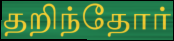
தறிந்தோர்